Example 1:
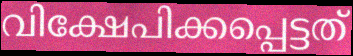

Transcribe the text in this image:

വിക്ഷേപിക്കപ്പെട്ടത്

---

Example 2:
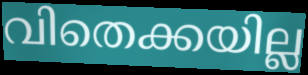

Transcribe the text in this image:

വിതെക്കയില്ല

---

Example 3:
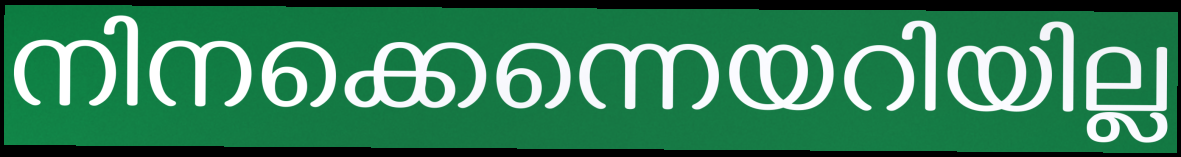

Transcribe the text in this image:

നിനക്കെന്നെയറിയില്ല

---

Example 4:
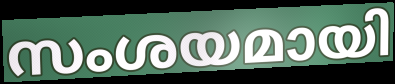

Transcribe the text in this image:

സംശയമായി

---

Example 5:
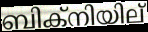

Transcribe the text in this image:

ബിക്നിയില്